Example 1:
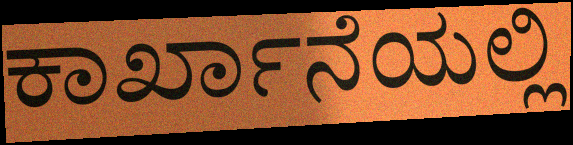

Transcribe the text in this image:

ಕಾರ್ಖಾನೆಯಲ್ಲಿ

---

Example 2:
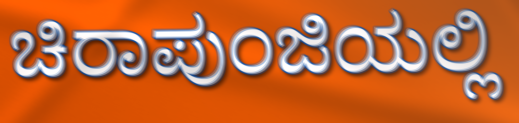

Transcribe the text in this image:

ಚಿರಾಪುಂಜಿಯಲ್ಲಿ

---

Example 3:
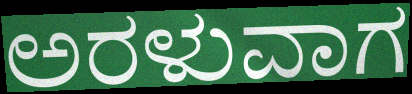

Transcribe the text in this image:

ಅರಳುವಾಗ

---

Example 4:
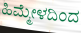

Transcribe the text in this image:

ಹಿಮ್ಮೇಳದಿಂದ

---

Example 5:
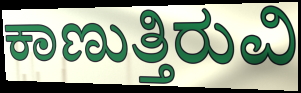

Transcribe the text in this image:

ಕಾಣುತ್ತಿರುವಿ